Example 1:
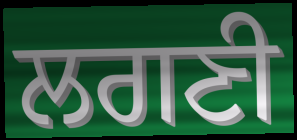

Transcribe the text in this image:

ਲਗਣੀ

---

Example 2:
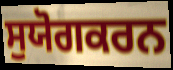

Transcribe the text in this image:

ਸੁਯੋਗਕਰਨ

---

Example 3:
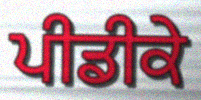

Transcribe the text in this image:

ਪੀਡੀਕੇ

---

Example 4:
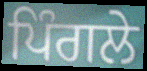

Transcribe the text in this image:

ਪਿੰਗਲੇ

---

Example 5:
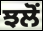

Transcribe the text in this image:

ਝਲੋਂ